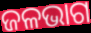
ଜଳଭାଗ